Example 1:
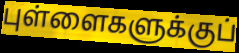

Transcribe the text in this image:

புள்ளைகளுக்குப்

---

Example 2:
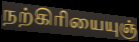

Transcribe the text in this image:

நற்கிரியையுஞ்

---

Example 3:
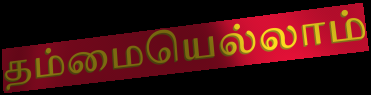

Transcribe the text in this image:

தம்மையெல்லாம்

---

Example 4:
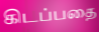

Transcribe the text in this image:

கிடப்பதை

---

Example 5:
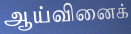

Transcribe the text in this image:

ஆய்வினைக்